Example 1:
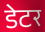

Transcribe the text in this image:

डेटर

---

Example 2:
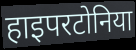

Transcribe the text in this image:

हाइपरटोनिया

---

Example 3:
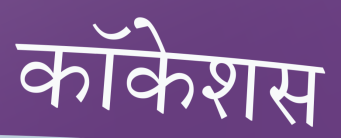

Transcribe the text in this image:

कॉकेशस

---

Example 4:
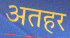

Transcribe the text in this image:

अतहर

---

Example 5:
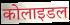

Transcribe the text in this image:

कोलाइडल